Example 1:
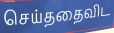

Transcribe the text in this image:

செய்ததைவிட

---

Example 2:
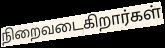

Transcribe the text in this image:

நிறைவடைகிறார்கள்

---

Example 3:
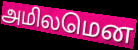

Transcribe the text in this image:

அமிலமென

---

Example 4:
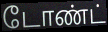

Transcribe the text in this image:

டோண்ட்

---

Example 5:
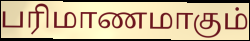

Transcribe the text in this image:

பரிமாணமாகும்